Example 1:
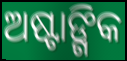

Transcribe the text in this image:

ଅଷ୍ଟାଙ୍ଗିକ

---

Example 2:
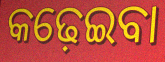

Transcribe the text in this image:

କଢ଼େଇବା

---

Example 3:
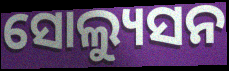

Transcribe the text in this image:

ସୋଲ୍ୟୁସନ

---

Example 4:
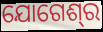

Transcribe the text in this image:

ଯୋଗେଶ୍‍ର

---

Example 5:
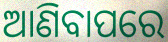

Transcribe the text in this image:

ଆଣିବାପରେ